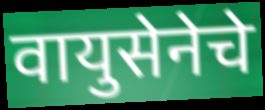
वायुसेनेचे